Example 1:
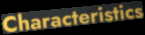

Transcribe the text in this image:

Characteristics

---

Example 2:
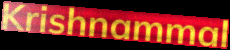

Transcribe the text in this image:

Krishnammal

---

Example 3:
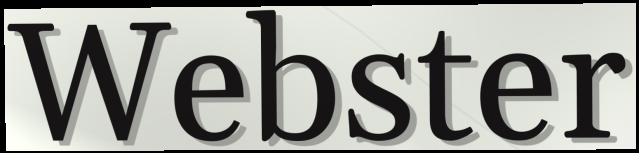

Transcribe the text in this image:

Webster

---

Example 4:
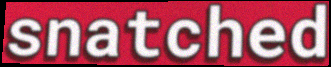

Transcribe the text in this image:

snatched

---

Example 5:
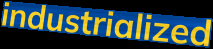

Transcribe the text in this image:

industrialized